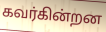
கவர்கின்றன